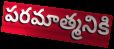
పరమాత్మనికి